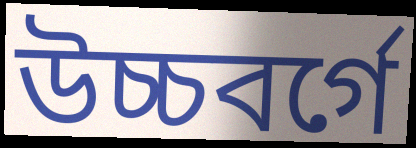
উচ্চবর্গে